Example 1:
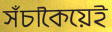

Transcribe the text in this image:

সঁচাকৈয়েই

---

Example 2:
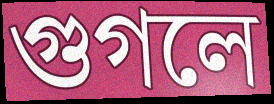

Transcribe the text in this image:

গুগলে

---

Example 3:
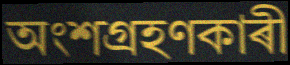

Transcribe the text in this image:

অংশগ্ৰহণকাৰী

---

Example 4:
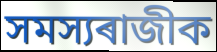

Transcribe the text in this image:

সমস্যৰাজীক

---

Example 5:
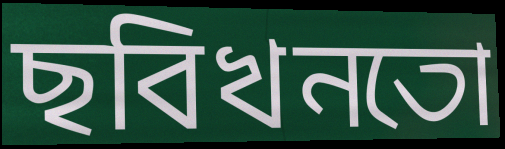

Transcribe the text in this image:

ছবিখনতো